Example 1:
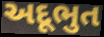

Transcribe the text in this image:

અદૂભુત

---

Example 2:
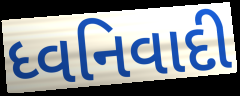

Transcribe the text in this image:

ધ્વનિવાદી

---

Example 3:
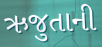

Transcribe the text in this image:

ઋજુતાની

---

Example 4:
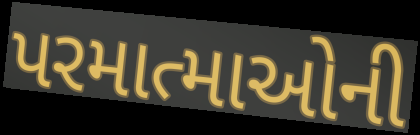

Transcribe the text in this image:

પરમાત્માઓની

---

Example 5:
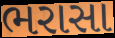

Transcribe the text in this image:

ભરાસા